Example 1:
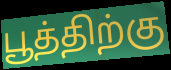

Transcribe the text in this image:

பூத்திற்கு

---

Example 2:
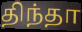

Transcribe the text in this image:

திந்தா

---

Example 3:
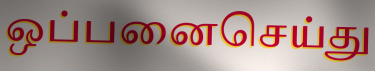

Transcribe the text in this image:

ஒப்பனைசெய்து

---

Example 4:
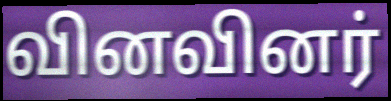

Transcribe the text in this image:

வினவினர்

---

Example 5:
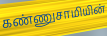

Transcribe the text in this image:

கண்ணுசாமியின்